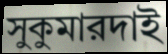
সুকুমারদাই